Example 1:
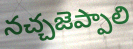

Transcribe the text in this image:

నచ్చజెప్పాలి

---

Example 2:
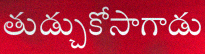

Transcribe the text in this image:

తుడ్చుకోసాగాడు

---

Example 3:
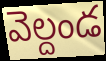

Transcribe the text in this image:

వెల్దండ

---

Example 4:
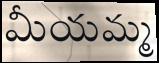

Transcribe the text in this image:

మీయమ్మ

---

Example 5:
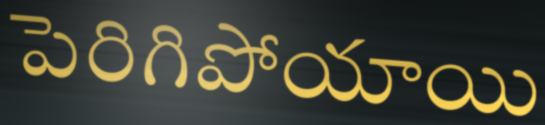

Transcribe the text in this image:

పెరిగిపోయాయి